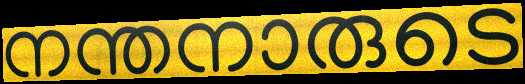
നന്തനാരുടെ